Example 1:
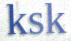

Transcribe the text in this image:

ksk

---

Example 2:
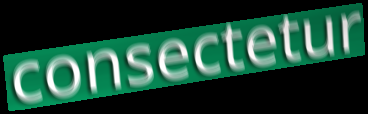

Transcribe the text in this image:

consectetur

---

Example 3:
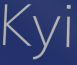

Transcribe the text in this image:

Kyi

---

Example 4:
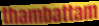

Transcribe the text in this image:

thambattam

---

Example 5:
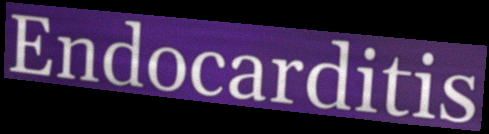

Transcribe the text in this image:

Endocarditis